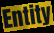
Entity